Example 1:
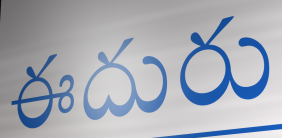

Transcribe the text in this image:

ఈదురు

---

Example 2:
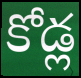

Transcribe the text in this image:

కోడ్ల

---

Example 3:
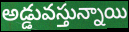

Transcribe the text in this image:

అడ్డువస్తున్నాయి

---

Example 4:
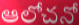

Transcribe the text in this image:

ఆలోచనో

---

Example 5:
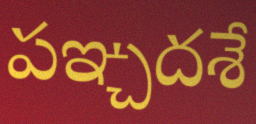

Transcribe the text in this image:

పఞ్చదశే